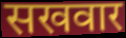
सखवार